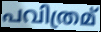
പവിത്രമ്